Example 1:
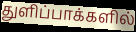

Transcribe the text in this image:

துளிப்பாக்களில்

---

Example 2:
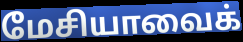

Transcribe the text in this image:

மேசியாவைக்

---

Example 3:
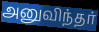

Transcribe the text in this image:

அனுவிந்தர்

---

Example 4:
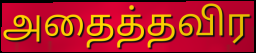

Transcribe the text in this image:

அதைத்தவிர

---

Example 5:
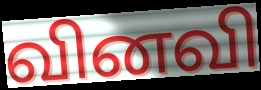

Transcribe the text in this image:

வினவி